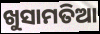
ଖୁସାମତିଆ